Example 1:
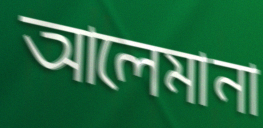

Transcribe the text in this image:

আলেমানা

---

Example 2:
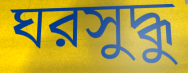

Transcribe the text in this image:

ঘরসুদ্ধু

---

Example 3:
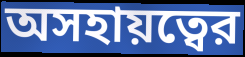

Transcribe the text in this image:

অসহায়ত্বের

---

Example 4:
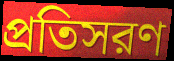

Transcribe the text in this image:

প্রতিসরণ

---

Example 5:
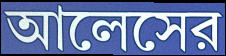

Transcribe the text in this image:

আলেসের